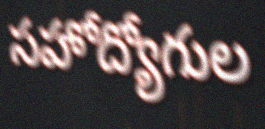
సహోద్యోగుల